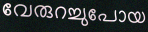
വേരുറച്ചുപോയ